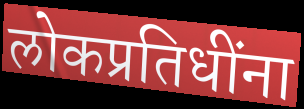
लोकप्रतिधींना